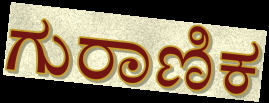
ಗುರಾಣಿಕ